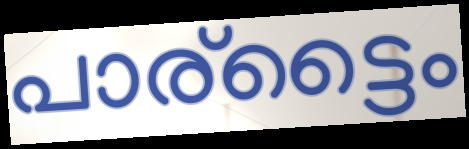
പാര്ട്ടൈം